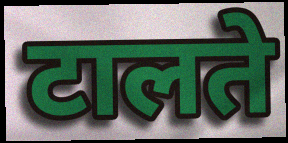
टालते